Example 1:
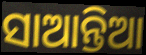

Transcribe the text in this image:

ସାଆନ୍ତିଆ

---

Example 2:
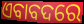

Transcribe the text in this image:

ଏବାବଦରେ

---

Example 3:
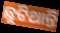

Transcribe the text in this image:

ଛୁଟିଥାନ୍ତି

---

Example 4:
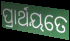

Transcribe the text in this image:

ପ୍ରାର୍ଥୟତେ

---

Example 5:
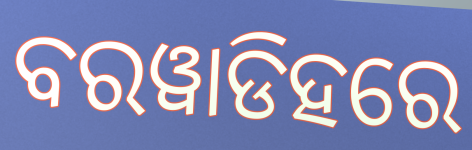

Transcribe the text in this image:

ବରୱାଡିହରେ